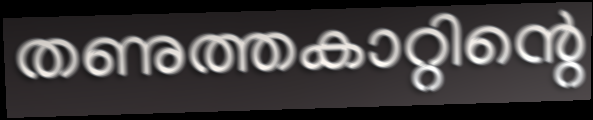
തണുത്തകാറ്റിന്റെ